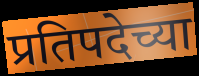
प्रतिपदेच्या